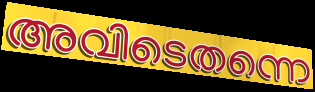
അവിടെതന്നെ